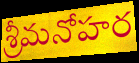
శ్రీమనోహర